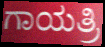
ಗಾಯತ್ರಿ